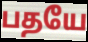
பதயே